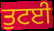
ਤੁਟਈ